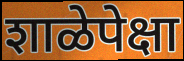
शाळेपेक्षा